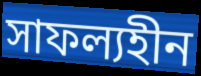
সাফল্যহীন